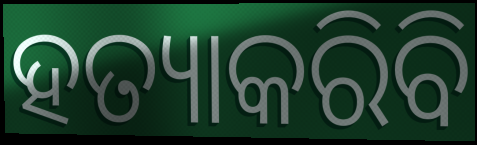
ହତ୍ୟାକରିବି